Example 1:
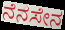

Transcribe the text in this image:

ನೆನಸೇನ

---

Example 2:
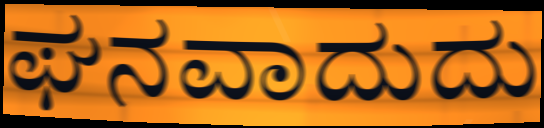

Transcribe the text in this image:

ಘನವಾದುದು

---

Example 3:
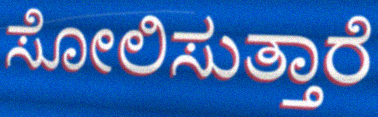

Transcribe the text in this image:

ಸೋಲಿಸುತ್ತಾರೆ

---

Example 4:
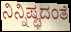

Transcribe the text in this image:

ನಿನ್ನಿಷ್ಟದಂತೆ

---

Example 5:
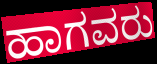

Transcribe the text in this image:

ಹಾಗವರು